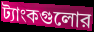
ট্যাংকগুলোর